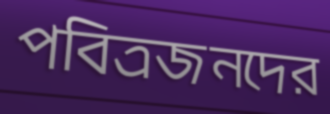
পবিত্রজনদের